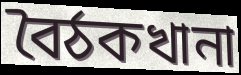
বৈঠকখানা